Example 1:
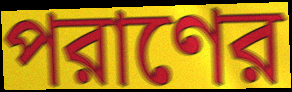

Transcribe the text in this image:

পরাণের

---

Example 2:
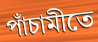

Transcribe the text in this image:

পাঁচামীতে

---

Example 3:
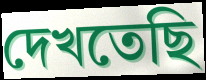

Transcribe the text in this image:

দেখতেছি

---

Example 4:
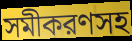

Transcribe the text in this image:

সমীকরণসহ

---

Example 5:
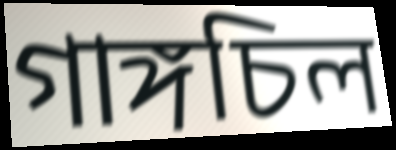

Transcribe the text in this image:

গাঙ্গচিল